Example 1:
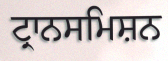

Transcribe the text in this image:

ਟ੍ਰਾਨਸਮਿਸ਼ਨ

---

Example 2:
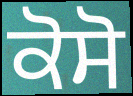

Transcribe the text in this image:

ਕੋਸੋ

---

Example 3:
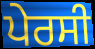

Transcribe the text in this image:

ਪੇਰਸੀ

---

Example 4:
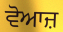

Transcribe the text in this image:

ਵੋਆਜ਼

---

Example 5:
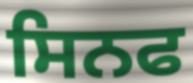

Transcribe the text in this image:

ਸਿਨਫ